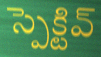
స్పెక్టివ్